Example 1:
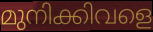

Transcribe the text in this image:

മുനിക്കിവളെ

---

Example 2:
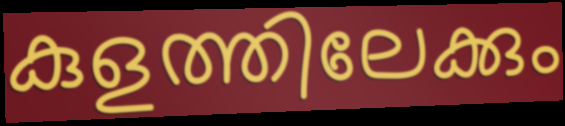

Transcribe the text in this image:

കുളത്തിലേക്കും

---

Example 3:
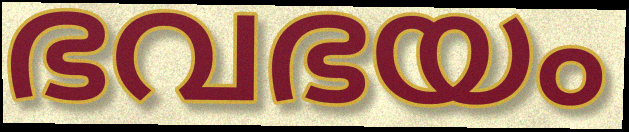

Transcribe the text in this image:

ഭവഭയം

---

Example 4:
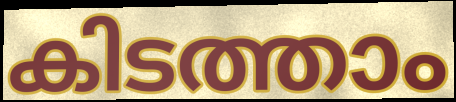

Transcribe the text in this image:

കിടത്താം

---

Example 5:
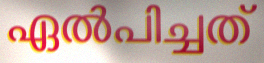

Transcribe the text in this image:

ഏൽപിച്ചത്